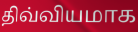
திவ்வியமாக